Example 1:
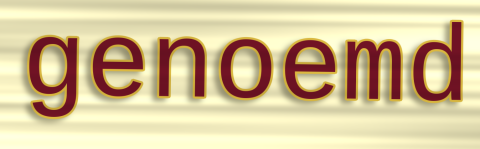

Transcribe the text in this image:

genoemd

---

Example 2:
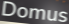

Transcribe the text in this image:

Domus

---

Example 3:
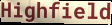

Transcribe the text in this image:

Highfield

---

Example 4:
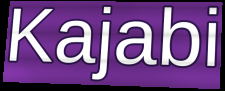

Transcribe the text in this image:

Kajabi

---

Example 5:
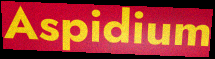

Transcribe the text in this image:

Aspidium